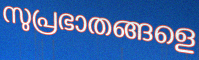
സുപ്രഭാതങ്ങളെ